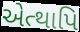
એત્થાપિ